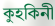
কুহকিনী